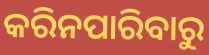
କରିନପାରିବାରୁ